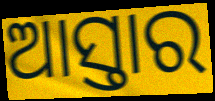
ଆସ୍ତାର